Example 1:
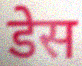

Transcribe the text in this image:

डेस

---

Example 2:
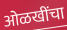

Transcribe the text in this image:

ओळखींचा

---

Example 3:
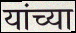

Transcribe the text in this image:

यांच्‍या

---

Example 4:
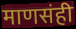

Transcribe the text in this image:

माणसंही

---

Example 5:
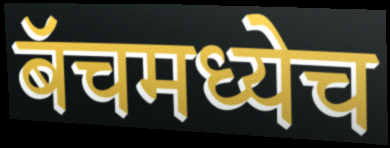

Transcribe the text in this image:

बॅचमध्येच